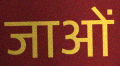
जाओं